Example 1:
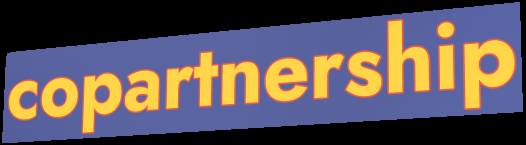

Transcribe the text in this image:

copartnership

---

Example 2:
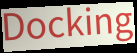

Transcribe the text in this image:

Docking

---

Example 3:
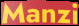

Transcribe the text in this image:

Manzi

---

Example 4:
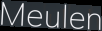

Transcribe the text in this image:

Meulen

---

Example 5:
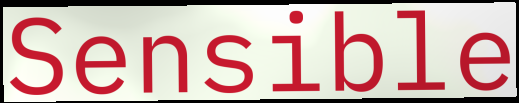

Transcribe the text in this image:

Sensible